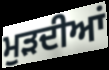
ਮੁੜਦੀਆਂ